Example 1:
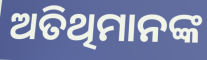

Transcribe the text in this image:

ଅତିଥିମାନଙ୍କ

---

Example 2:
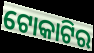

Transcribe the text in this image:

ଟୋକାଟିର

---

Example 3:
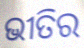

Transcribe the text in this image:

ଭୀତିର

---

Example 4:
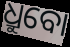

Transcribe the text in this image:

ଧ୍ରୁବୋ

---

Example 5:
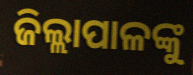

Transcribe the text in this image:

ଜିଲ୍ଲାପାଳଙ୍କୁ